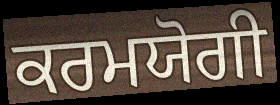
ਕਰਮਯੋਗੀ